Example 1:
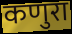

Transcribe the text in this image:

कणुरा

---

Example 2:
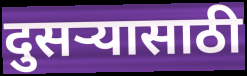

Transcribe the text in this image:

दुसऱ्यासाठी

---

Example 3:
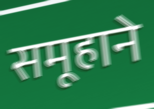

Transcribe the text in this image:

समूहाने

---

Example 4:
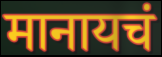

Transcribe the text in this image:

मानायचं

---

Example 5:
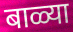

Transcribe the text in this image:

बाळ्या